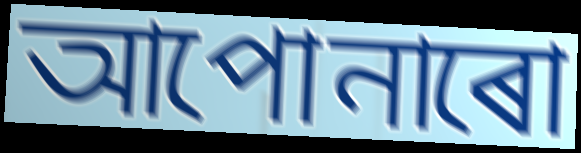
আপোনাৰো